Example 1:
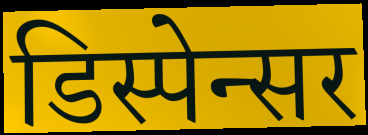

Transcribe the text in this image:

डिस्पेन्सर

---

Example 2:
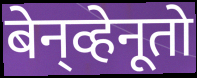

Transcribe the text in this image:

बेन्‌व्हेनूतो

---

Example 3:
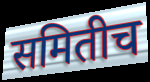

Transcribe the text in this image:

समितीच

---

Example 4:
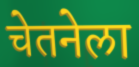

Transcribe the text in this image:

चेतनेला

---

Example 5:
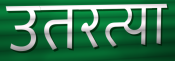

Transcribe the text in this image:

उतरत्या